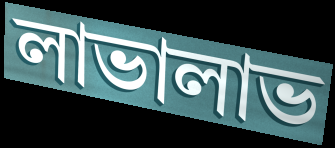
লাভালাভ